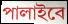
পালাইবে